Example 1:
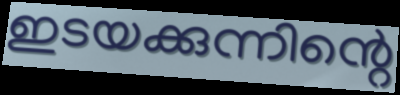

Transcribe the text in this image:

ഇടയക്കുന്നിന്റെ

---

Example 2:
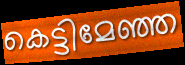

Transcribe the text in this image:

കെട്ടിമേഞ്ഞ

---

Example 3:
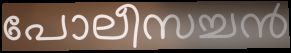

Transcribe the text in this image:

പോലീസച്ചൻ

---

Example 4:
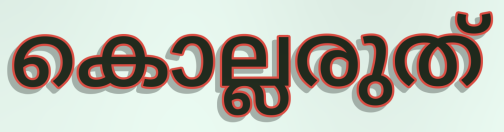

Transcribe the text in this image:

കൊല്ലരുത്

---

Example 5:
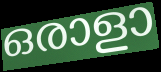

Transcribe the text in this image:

ഒരാളാ